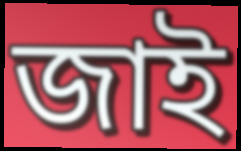
জাই